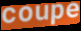
coupe